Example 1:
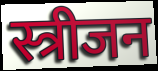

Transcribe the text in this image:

स्त्रीजन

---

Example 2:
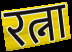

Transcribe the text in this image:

रत्ना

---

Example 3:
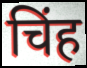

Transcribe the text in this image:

चिंह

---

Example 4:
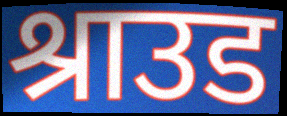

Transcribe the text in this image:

श्राउड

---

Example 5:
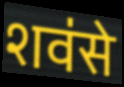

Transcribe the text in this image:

शव॑से